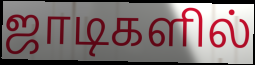
ஜாடிகளில்